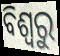
ବିଶ୍ଵରୁ